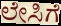
ಲೇಸಿಗೆ